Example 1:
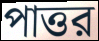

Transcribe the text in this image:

পাত্তর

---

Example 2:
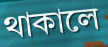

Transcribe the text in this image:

থাকালে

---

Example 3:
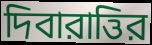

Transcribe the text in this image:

দিবারাত্তির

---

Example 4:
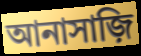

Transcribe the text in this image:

আনাসাজ়ি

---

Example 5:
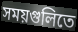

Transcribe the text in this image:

সময়গুলিতে